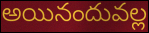
అయినందువల్ల